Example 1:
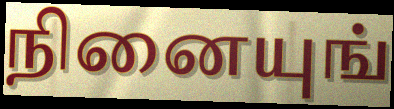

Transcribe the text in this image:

நினையுங்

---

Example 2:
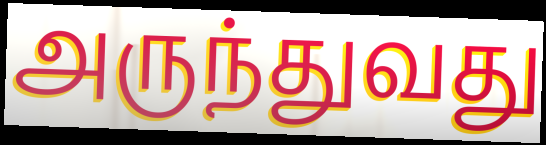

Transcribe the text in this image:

அருந்துவது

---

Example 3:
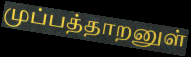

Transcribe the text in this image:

முப்பத்தாறனுள்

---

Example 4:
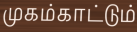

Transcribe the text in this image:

முகம்காட்டும்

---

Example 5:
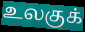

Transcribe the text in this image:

உலகுக்